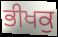
ਭੀਖਕੁ